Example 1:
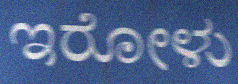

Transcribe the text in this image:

ಇರೋಳು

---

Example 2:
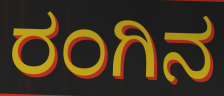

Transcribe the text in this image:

ರಂಗಿನ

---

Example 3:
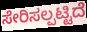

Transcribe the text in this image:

ಸೇರಿಸಲ್ಪಟ್ಟಿದೆ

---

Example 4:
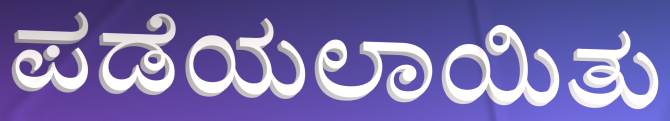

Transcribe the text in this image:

ಪಡೆಯಲಾಯಿತು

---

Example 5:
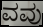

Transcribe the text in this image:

ವವು